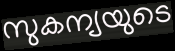
സുകന്യയുടെ